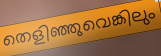
തെളിഞ്ഞുവെങ്കിലും